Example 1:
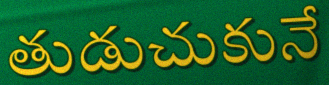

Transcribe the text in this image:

తుడుచుకునే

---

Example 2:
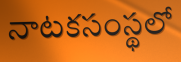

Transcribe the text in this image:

నాటకసంస్థలో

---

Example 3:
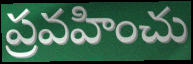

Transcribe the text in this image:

ప్రవహించు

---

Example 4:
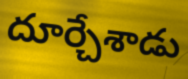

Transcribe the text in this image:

దూర్చేశాడు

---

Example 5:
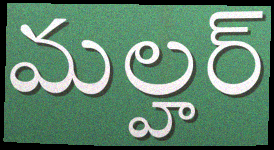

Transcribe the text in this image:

మల్హర్